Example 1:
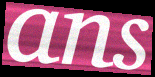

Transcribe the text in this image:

ans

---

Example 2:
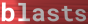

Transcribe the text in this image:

blasts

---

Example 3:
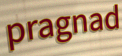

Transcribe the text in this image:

pragnad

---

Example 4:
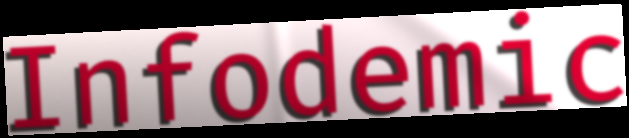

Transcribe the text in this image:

Infodemic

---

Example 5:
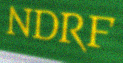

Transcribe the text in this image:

NDRF